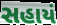
સહાયં